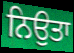
ਨਿਉਤਾ